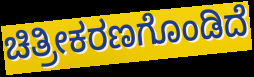
ಚಿತ್ರೀಕರಣಗೊಂಡಿದೆ